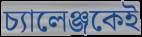
চ্যালেঞ্জকেই